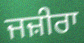
ਜਜ਼ੀਰਾ